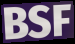
BSF